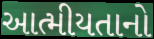
આત્મીયતાનો